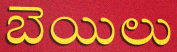
బెయిలు